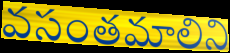
వసంతమాలిని